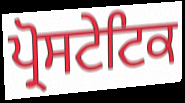
ਪ੍ਰੋਸਟੇਟਿਕ